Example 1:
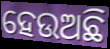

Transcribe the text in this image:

ହେଉଅଛି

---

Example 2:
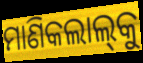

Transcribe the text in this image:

ମାଣିକଲାଲ୍‍କୁ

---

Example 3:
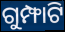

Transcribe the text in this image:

ଗୁମ୍ଫାଟି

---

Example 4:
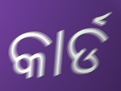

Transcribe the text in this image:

କାର୍ଡ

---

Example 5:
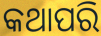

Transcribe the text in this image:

କଥାପରି